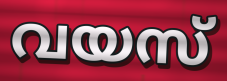
വയസ്